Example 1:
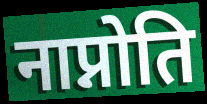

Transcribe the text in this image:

नाप्नोति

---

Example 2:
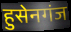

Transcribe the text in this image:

हुसेनगंज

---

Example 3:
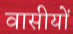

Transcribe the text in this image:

वासीयों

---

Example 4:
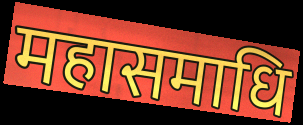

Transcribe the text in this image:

महासमाधि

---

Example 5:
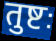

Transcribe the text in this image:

तुष्टः